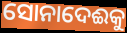
ସୋନାଦେଈକୁ